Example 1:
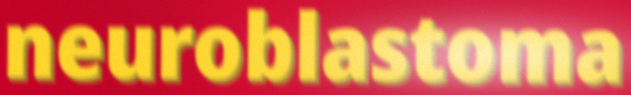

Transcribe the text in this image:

neuroblastoma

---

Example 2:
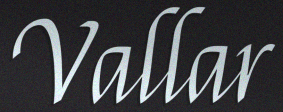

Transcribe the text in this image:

Vallar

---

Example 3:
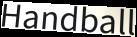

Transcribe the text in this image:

Handball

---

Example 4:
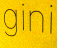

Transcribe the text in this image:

gini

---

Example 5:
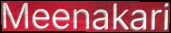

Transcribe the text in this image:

Meenakari